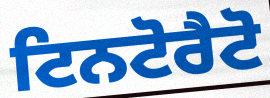
ਟਿਨਟੋਰੈਟੋ